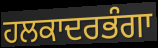
ਹਲਕਾਦਰਭੰਗਾ